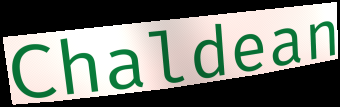
Chaldean